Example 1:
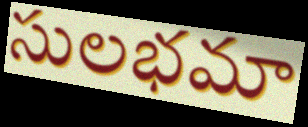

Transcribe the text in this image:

సులభమా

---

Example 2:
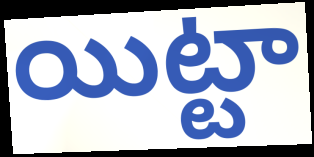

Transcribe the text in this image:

యిట్టా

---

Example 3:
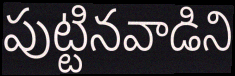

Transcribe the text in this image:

పుట్టినవాడిని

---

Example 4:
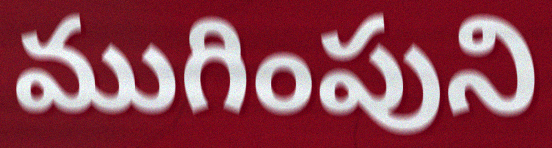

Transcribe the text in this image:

ముగింపుని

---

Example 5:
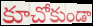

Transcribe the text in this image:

కూచోకుండా